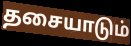
தசையாடும்